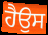
ਹੈਉਸ